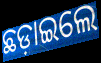
ଛଡ଼ାଇଲେ